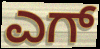
ಎಗ್